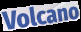
Volcano